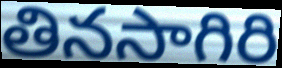
తినసాగిరి